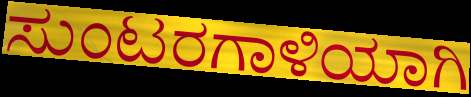
ಸುಂಟರಗಾಳಿಯಾಗಿ